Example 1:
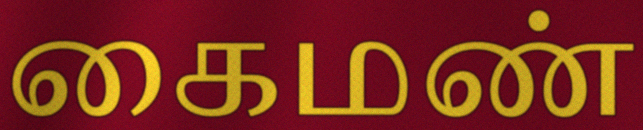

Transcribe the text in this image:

கைமண்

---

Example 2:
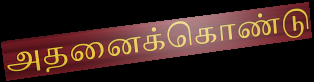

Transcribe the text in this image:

அதனைக்கொண்டு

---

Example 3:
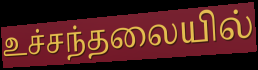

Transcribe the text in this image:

உச்சந்தலையில்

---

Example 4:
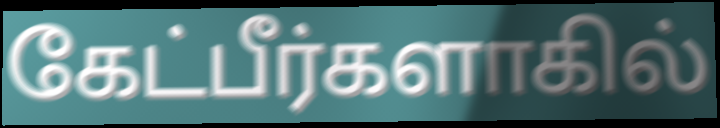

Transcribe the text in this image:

கேட்பீர்களாகில்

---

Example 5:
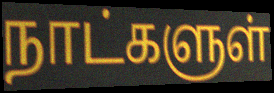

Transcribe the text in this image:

நாட்களுள்